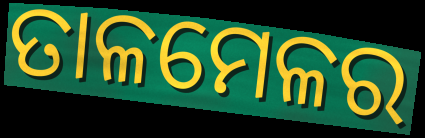
ତାଳମେଳର